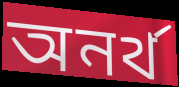
অনর্থ